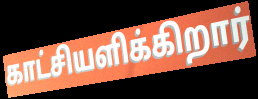
காட்சியளிக்கிறார்